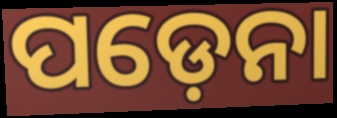
ପଡ଼େନା